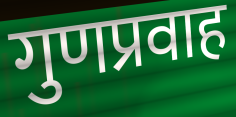
गुणप्रवाह